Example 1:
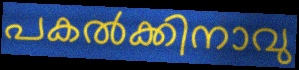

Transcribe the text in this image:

പകൽക്കിനാവു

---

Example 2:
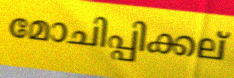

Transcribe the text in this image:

മോചിപ്പിക്കല്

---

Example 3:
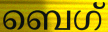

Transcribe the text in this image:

ബെഗ്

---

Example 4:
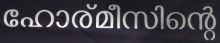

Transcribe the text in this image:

ഹോര്മീസിന്റെ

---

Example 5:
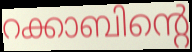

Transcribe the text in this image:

റക്കാബിന്റെ